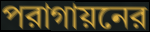
পরাগায়নের